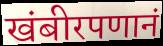
खंबीरपणानं